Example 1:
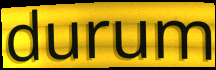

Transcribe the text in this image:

durum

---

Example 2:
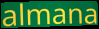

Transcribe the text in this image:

almana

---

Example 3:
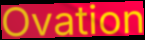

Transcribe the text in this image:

Ovation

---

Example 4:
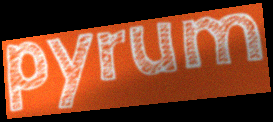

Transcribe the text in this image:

pyrum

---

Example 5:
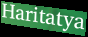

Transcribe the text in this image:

Haritatya